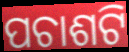
ପଚାଶଟି